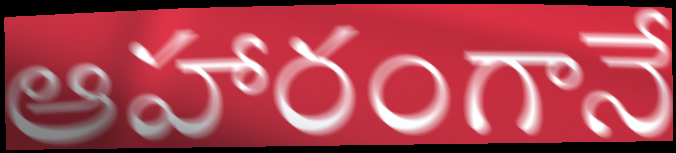
ఆహారంగానే